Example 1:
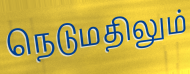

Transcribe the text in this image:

நெடுமதிலும்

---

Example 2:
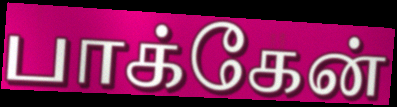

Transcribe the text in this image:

பாக்கேன்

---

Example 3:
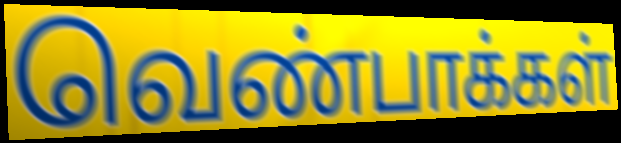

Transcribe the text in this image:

வெண்பாக்கள்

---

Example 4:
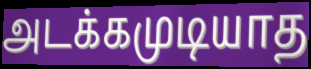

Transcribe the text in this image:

அடக்கமுடியாத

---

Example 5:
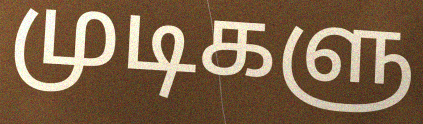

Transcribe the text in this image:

முடிகளு